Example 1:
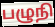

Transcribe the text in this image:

பழுநி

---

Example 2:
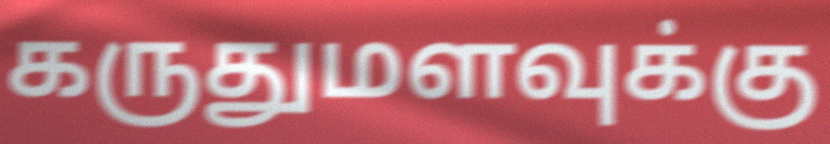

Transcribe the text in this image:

கருதுமளவுக்கு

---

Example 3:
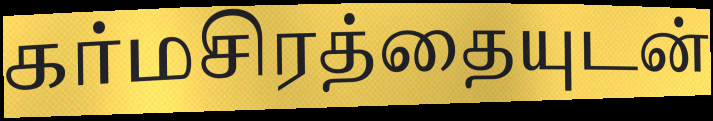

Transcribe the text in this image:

கர்மசிரத்தையுடன்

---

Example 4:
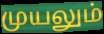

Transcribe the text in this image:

முயலும்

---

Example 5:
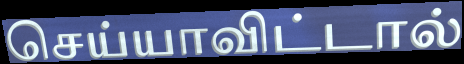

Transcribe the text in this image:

செய்யாவிட்டால்